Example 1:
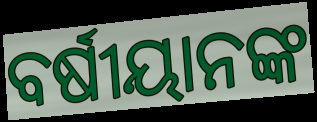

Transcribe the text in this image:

ବର୍ଷୀୟାନଙ୍କ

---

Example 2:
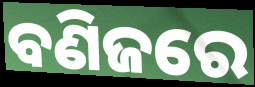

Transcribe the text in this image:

ବଣିଜରେ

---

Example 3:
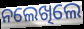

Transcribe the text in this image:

ନଲେଖିଲେ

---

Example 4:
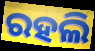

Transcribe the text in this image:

ରହଲି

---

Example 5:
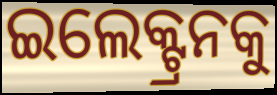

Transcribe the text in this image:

ଇଲେକ୍ଟ୍ରନକୁ